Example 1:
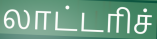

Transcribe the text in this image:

லாட்டரிச்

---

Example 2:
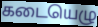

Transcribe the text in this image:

கடையெழு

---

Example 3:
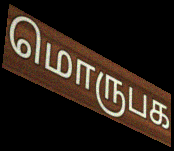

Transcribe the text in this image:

மொருபக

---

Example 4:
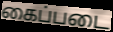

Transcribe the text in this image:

கைப்படை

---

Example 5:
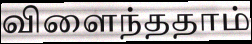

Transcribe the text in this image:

விளைந்ததாம்